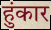
हुंकार